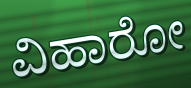
ವಿಹಾರೋ